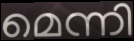
മെന്നി